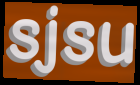
sjsu